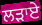
ਲੜਾਏ